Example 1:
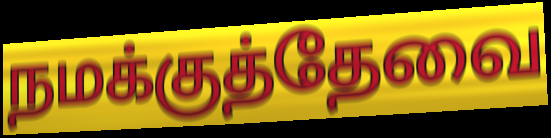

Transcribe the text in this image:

நமக்குத்தேவை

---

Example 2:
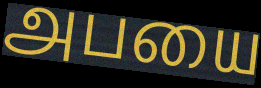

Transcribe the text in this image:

அபயை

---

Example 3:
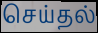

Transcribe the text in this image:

செய்தல்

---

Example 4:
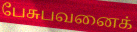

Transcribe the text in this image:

பேசுபவனைக்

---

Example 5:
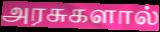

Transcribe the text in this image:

அரசுகளால்